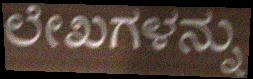
ಲೇಖಗಳನ್ನು